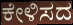
ಕೇಳಿಸದ